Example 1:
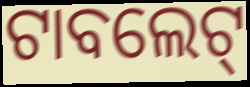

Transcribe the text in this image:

ଟାବଲେଟ୍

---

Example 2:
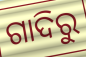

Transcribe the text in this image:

ଗାଦିରୁ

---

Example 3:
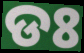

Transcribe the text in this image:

ଡଃ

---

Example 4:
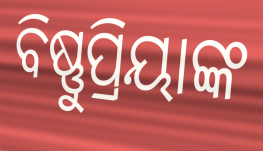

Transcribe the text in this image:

ବିଷ୍ଣୁପ୍ରିୟାଙ୍କ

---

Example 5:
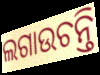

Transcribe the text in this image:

ଲଗାଉଚନ୍ତି